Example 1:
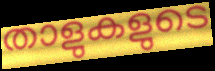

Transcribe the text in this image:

താളുകളുടെ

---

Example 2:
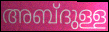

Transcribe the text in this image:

അബ്ദുള്ള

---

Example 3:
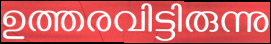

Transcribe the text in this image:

ഉത്തരവിട്ടിരുന്നു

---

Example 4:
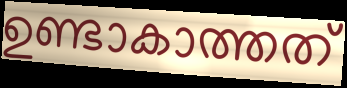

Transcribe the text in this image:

ഉണ്ടാകാത്തത്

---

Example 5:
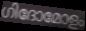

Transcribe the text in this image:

ഗിദോമോളം